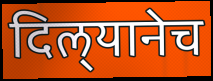
दिल्यानेच